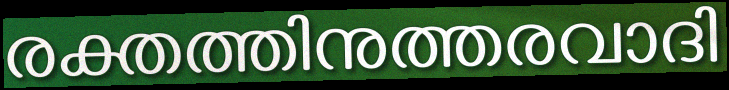
രക്തത്തിനുത്തരവാദി